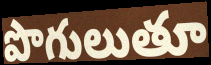
పొగులుతూ